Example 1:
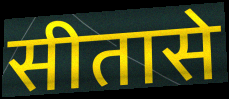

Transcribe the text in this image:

सीतासे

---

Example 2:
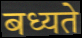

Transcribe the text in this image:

बध्यते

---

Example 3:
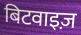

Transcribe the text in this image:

बिटवाइज़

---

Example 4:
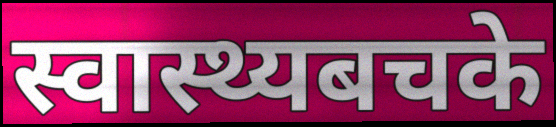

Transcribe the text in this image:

स्वास्थ्यबचके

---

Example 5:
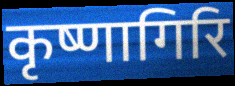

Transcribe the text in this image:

कृष्णागिरि